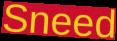
Sneed